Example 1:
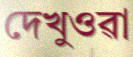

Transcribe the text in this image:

দেখুওৱা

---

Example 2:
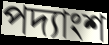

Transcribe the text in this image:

পদ্যাংশ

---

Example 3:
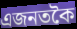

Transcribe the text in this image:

এজনতকৈ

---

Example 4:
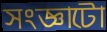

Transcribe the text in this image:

সংজ্ঞাটো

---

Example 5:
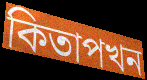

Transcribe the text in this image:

কিতাপখন